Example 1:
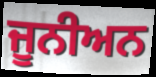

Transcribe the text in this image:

ਜੂਨੀਅਨ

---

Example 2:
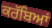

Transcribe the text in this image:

ਕਰੱਬਿਆਂ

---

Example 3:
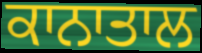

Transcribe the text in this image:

ਕਾਨਾਤਾਲ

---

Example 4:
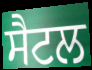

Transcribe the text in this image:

ਸੈਟਲ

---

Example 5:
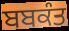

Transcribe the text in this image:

ਬਬਕੰਤ